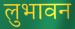
लुभावन